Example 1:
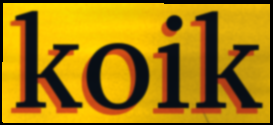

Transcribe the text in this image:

koik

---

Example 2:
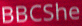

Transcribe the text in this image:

BBCShe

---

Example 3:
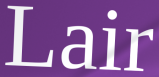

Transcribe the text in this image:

Lair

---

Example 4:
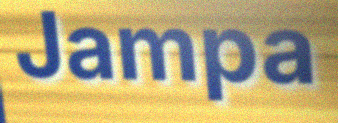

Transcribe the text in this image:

Jampa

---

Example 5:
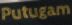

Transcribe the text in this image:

Putugam